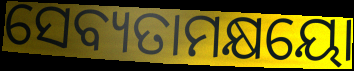
ସେବ୍ୟତାମକ୍ଷୟୋ